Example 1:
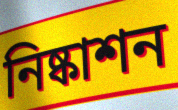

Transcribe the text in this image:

নিষ্কাশন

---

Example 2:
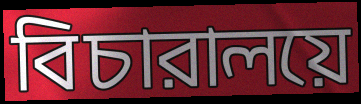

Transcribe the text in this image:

বিচারালয়ে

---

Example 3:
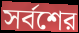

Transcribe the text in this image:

সর্বশের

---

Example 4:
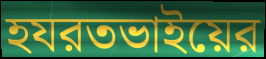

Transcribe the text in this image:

হযরতভাইয়ের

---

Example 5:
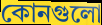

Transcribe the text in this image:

কোনগুলো